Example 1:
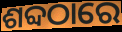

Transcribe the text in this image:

ଶବ୍ଦଠାରେ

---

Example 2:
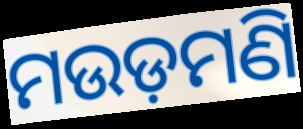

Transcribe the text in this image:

ମଉଡ଼ମଣି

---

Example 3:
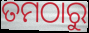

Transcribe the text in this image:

ତମଠାରୁ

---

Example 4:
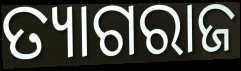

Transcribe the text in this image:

ତ୍ୟାଗରାଜ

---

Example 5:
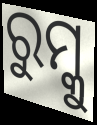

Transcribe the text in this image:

ରୁମ୍କୁ